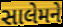
સાલેમને